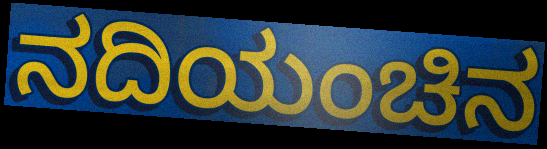
ನದಿಯಂಚಿನ